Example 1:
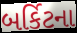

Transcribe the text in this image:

બર્કિટના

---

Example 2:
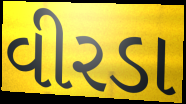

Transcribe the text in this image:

વીરડા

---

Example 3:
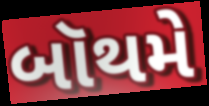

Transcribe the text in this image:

બૉથમે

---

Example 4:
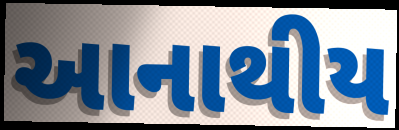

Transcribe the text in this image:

આનાથીય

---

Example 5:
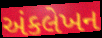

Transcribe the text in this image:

અંકલેખન